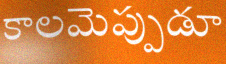
కాలమెప్పుడూ